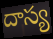
దాస్య